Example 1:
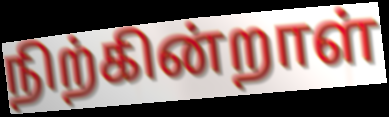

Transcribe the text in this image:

நிற்கின்றாள்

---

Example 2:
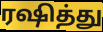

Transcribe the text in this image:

ரஷித்து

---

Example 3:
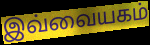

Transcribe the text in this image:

இவ்வையகம்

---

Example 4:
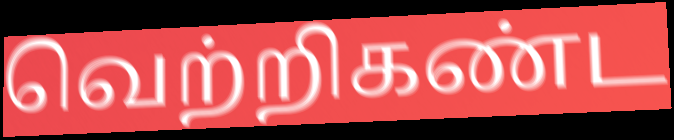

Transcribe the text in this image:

வெற்றிகண்ட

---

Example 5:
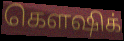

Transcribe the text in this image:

கௌஷிக்